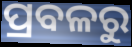
ପ୍ରବଳରୁ